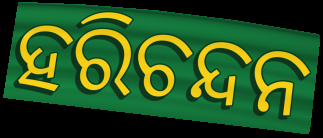
ହରିଚନ୍ଦନ